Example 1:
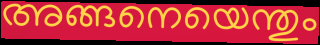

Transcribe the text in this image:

അങ്ങനെയെന്തും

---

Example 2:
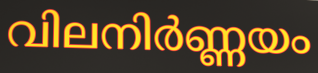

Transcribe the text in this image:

വിലനിർണ്ണയം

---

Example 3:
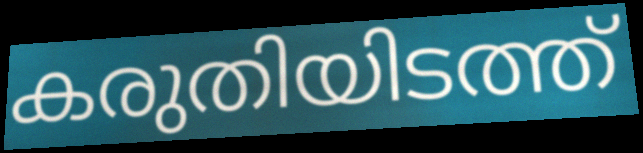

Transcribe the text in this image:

കരുതിയിടത്ത്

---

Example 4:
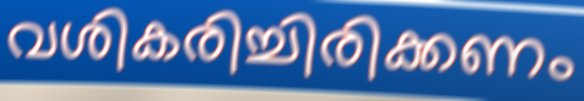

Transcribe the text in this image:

വശികരിച്ചിരിക്കണം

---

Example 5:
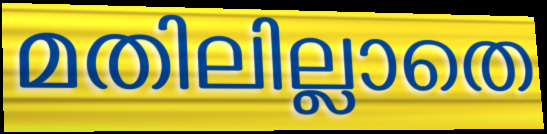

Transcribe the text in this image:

മതിലില്ലാതെ